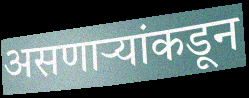
असणाऱ्यांकडून